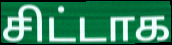
சிட்டாக